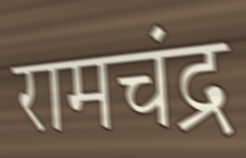
रामचंद्र